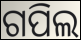
ଗପିଲ